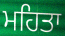
ਮਹਿਤਾ